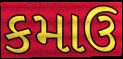
કમાઉ